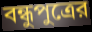
বন্ধুপুত্রের